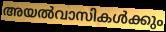
അയൽവാസികൾക്കും